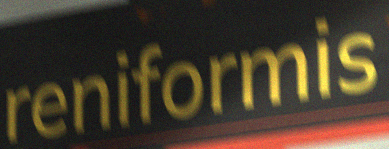
reniformis